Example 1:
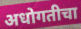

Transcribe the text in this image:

अधोगतीचा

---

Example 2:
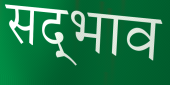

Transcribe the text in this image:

सद्‍भाव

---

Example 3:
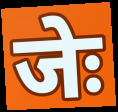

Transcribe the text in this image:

जेः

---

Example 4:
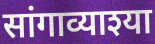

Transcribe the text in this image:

सांगाव्याश्या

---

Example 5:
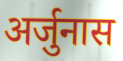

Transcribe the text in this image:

अर्जुनास